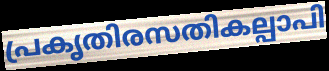
പ്രകൃതിരസതികല്പാപി